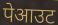
पेआउट